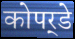
कोपर्डे